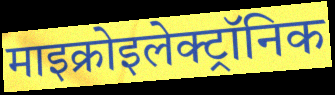
माइक्रोइलेक्ट्रॉनिक